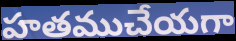
హతముచేయగా